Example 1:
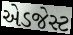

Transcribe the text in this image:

એડજેસ્ટ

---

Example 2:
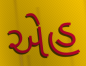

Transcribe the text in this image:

એહ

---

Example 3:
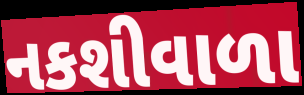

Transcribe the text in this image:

નકશીવાળા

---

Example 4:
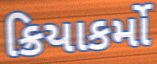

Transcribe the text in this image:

ક્રિયાકર્મો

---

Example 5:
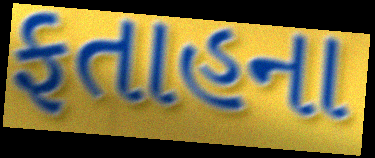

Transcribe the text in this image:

ફતાહના